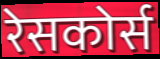
रेसकोर्स